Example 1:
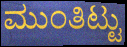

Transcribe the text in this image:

ಮುಂತಿಟ್ಟು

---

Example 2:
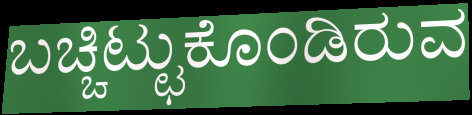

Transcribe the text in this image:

ಬಚ್ಚಿಟ್ಟುಕೊಂಡಿರುವ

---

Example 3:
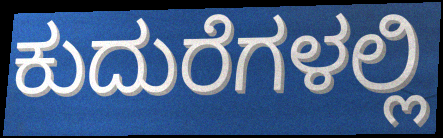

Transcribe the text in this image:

ಕುದುರೆಗಳಲ್ಲಿ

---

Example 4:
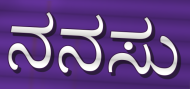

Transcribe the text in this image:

ನನಸು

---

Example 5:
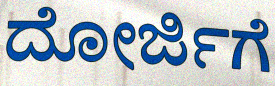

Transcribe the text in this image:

ದೋರ್ಜಿಗೆ